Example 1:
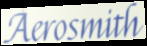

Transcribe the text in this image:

Aerosmith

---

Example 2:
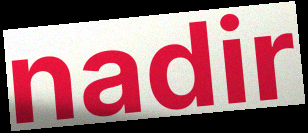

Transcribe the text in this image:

nadir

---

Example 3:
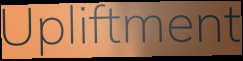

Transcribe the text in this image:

Upliftment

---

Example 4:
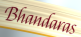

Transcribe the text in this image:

Bhandaras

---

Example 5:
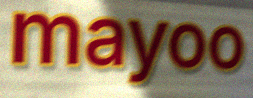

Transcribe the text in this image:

mayoo